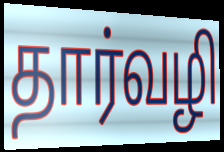
தார்வழி